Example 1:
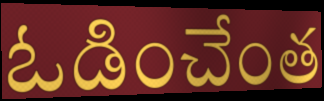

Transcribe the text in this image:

ఓడించేంత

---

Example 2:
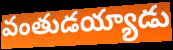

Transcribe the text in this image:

వంతుడయ్యాడు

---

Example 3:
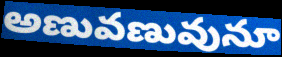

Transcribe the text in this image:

అణువణువునూ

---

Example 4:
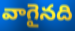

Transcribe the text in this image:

వాగైనది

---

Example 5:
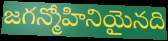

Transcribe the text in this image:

జగన్మోహినియైనది